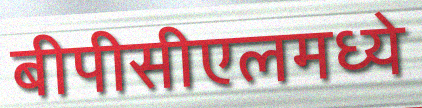
बीपीसीएलमध्ये